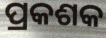
ପ୍ରକଶକ